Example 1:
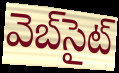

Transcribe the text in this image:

వెబ్‌సైట్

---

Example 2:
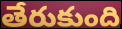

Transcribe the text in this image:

తేరుకుంది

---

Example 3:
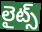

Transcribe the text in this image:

లైట్స్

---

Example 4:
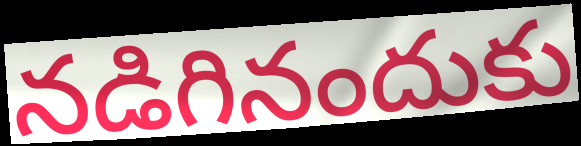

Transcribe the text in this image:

నడిగినందుకు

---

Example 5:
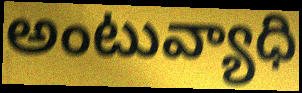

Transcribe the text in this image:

అంటువ్యాధి